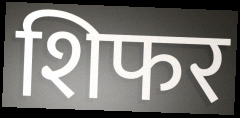
शिफर